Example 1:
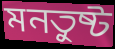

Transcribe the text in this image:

মনতুষ্ট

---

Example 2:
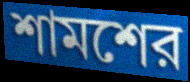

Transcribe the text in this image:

শামশের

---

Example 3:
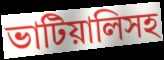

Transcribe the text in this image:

ভাটিয়ালিসহ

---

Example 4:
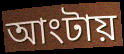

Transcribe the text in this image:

আংটায়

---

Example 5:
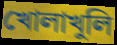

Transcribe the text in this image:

খোলাখুলি